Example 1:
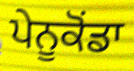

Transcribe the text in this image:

ਪੇਨੂਕੋਂਡਾ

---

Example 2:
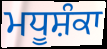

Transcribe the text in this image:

ਮਧੂਸ਼ੰਕਾ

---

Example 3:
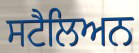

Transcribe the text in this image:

ਸਟੈਲਿਅਨ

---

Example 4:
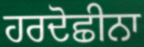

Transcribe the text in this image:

ਹਰਦੋਛੀਨਾ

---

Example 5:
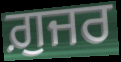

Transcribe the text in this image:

ਗ਼ੁਜਰ